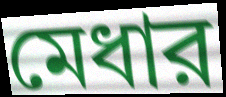
মেধার